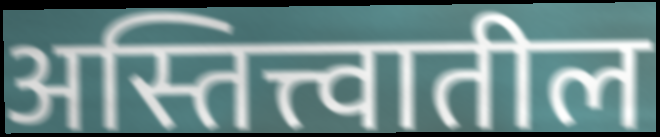
अस्तित्त्वातील